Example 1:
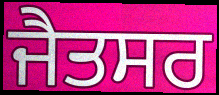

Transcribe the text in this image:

ਜੈਤਸਰ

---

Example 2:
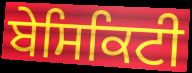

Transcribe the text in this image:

ਬੇਸਿਕਿਟੀ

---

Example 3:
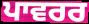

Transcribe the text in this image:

ਪਾਵਰਰ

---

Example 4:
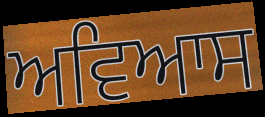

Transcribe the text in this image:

ਅਵਿਆਸ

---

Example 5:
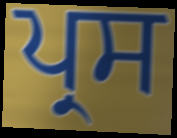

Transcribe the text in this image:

ਪ੍ਰਸ